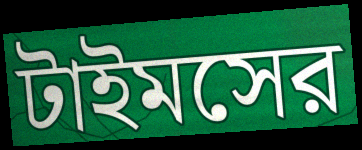
টাইমসের